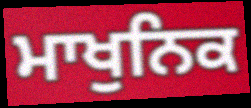
ਮਾਖੁਨਿਕ